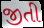
જીતી